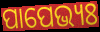
ପାପେଭ୍ୟଃ